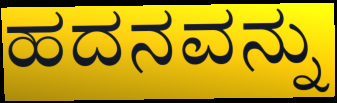
ಹದನವನ್ನು